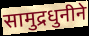
सामुद्रधुनीने